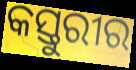
କସ୍ତୁରୀର